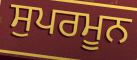
ਸੁਪਰਮੂਨ